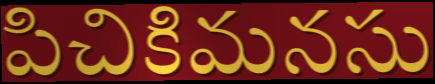
పిచికిమనసు